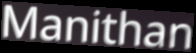
Manithan